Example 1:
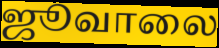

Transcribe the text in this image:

ஜூவாலை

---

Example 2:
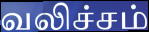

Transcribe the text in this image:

வலிச்சம்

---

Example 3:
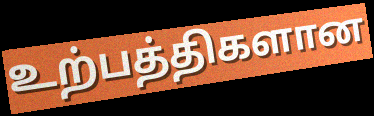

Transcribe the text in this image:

உற்பத்திகளான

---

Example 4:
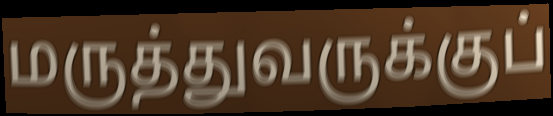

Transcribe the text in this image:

மருத்துவருக்குப்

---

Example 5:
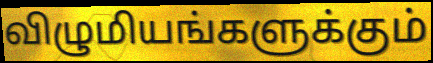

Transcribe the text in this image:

விழுமியங்களுக்கும்